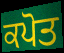
ਕਪੋਤ